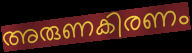
അരുണകിരണം